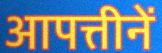
आपत्तीनें